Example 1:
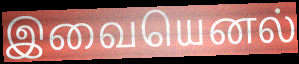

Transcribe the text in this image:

இவையெனல்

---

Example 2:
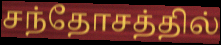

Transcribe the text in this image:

சந்தோசத்தில்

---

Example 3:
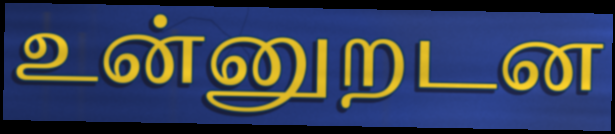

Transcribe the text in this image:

உன்னுறடன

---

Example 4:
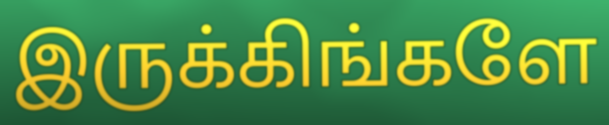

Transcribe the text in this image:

இருக்கிங்களே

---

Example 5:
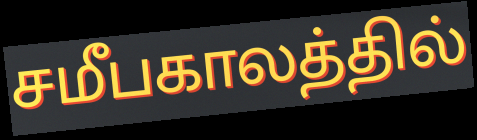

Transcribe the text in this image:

சமீபகாலத்தில்